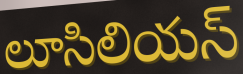
లూసిలియస్